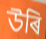
উৰি